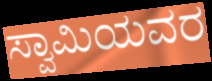
ಸ್ವಾಮಿಯವರ